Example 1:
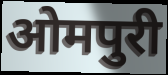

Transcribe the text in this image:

ओमपुरी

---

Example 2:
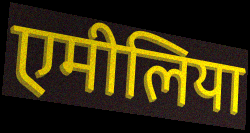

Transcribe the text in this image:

एमीलिया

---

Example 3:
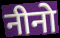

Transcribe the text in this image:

नीनो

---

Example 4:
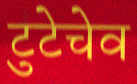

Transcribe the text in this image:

टुटेचेव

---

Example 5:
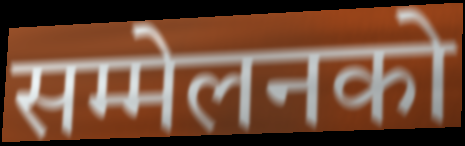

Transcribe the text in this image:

सम्मेलनको